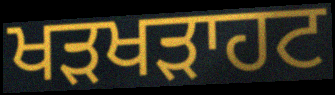
ਖੜਖੜਾਹਟ